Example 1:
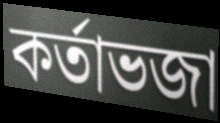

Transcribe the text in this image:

কর্তাভজা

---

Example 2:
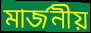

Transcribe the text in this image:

মার্জনীয়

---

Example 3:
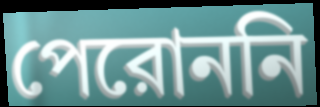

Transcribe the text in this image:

পেরোননি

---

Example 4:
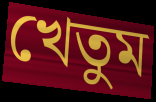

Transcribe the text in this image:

খেতুম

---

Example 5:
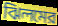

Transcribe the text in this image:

ঝিলমের